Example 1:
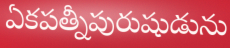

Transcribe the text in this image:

ఏకపత్నీపురుషుడును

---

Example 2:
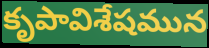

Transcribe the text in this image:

కృపావిశేషమున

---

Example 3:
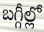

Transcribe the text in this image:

బగ్గీల్లో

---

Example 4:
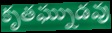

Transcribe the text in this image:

కృతఘ్నుడవు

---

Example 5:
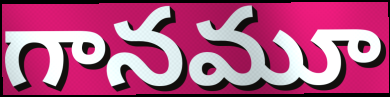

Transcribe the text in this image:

గానమూ